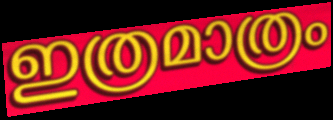
ഇത്രമാത്രം